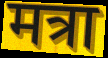
मत्रा